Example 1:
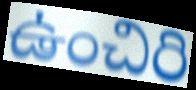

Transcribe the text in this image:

ఉంచిరి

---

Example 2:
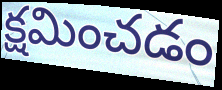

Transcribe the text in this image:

క్షమించడం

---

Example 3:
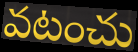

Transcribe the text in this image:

వటంచు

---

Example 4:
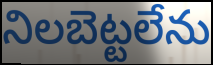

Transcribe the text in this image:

నిలబెట్టలేను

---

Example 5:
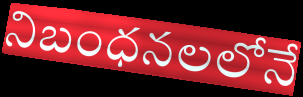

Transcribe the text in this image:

నిబంధనలలోనే